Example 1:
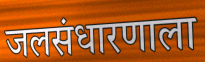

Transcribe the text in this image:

जलसंधारणाला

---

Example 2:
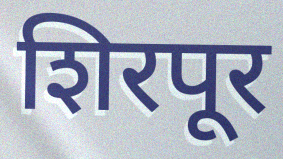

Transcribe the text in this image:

शिरपूर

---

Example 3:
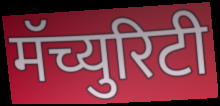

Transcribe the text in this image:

मॅच्युरिटी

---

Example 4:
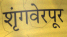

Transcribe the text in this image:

शृंगवेरपूर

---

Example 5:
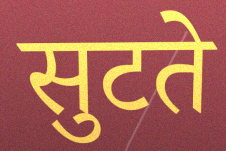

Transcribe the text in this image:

सुटते